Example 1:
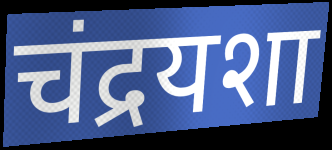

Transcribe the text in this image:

चंद्रयशा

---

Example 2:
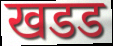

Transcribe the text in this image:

खडड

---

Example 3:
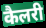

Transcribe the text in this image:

कैलरी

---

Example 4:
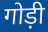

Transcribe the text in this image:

गोड़ी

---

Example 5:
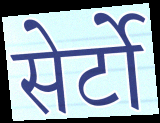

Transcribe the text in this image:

सेर्टो